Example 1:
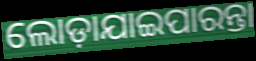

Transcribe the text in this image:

ଲୋଡ଼ାଯାଇପାରନ୍ତା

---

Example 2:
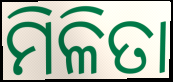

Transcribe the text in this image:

ମିଳିତା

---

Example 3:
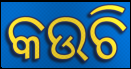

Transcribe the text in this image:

କଉଚି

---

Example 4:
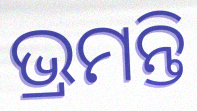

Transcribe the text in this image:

ଭ୍ରମନ୍ତି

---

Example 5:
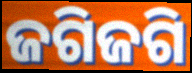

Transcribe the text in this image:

ଜଗିଜଗି